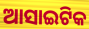
ଆସାଇଟିକ